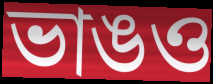
ভাঙও